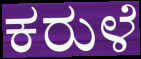
ಕರುಳೆ